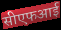
सीएफआई